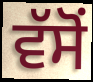
ਵੱਸੋਂ